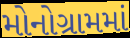
મોનોગ્રામમાં